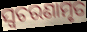
ସ୍ଵଚରଣାମୃତ